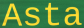
Asta